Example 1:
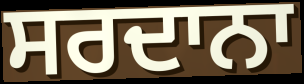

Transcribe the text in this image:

ਸਰਦਾਨਾ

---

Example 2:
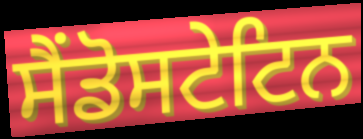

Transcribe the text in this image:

ਸੈਂਡੋਸਟੇਟਿਨ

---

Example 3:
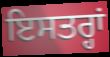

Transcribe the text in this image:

ਇਸਤਰ੍ਹਾਂ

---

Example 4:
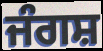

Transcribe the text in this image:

ਜੰਗਸ਼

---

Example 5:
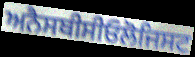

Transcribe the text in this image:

ਅਨੈਸਥੀਸੀਓਲੋਜਿਸਟ